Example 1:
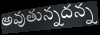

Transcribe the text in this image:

అవుతున్నదన్న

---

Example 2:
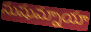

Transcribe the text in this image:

సుషుమ్నాయా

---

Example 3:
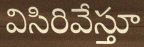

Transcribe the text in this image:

విసిరివేస్తూ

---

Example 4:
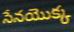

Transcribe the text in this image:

సేనయొక్క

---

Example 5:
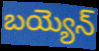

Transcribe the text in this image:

బయ్యెన్